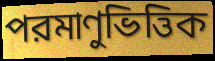
পরমাণুভিত্তিক